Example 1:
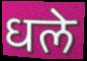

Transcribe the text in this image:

धले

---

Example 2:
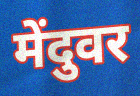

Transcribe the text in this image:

मेंदुवर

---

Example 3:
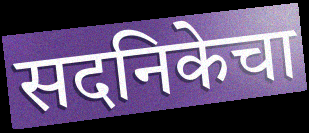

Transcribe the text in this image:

सदनिकेचा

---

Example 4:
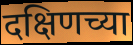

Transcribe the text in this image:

दक्षिणच्या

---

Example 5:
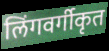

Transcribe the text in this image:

लिंगवर्गीकृत